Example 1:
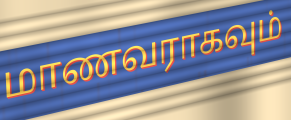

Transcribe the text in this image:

மாணவராகவும்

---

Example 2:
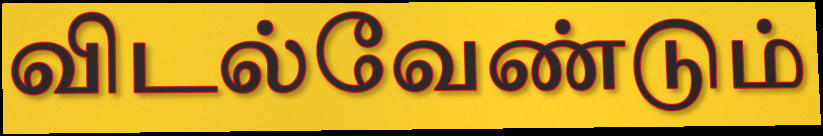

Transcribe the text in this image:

விடல்வேண்டும்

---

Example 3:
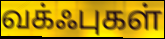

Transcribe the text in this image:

வக்ஃபுகள்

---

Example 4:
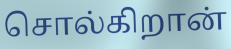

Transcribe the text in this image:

சொல்கிறான்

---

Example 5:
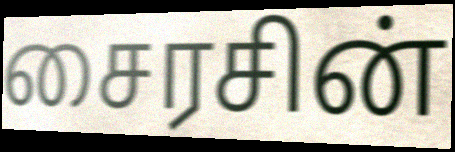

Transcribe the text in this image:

சைரசின்